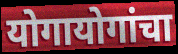
योगायोगांचा